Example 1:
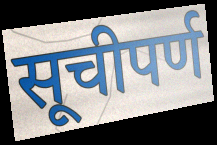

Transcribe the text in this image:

सूचीपर्ण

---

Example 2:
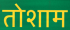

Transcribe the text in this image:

तोशाम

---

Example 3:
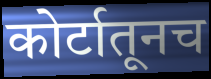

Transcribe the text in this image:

कोर्टातूनच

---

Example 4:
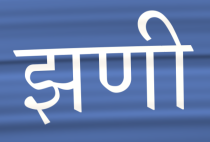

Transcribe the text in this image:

झणी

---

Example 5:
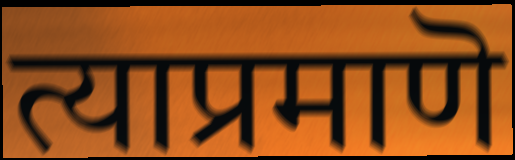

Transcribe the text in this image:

त्याप्रमाणॆ